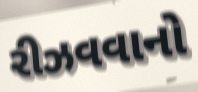
રીઝવવાનો